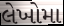
લેખોમા